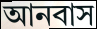
আনবাস